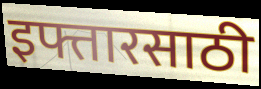
इफ्तारसाठी